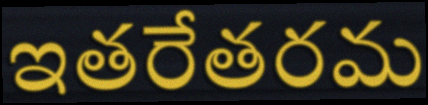
ఇతరేతరమ